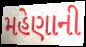
મહેણાની